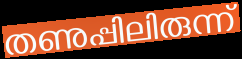
തണുപ്പിലിരുന്ന്